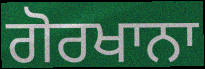
ਗੋਰਖਾਨਾ